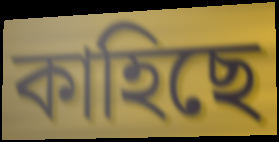
কাহিছে